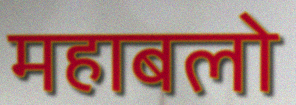
महाबलो